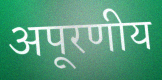
अपूरणीय